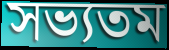
সভ্যতম